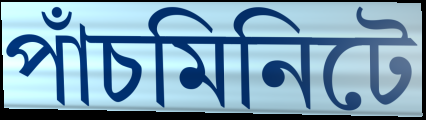
পাঁচমিনিটে